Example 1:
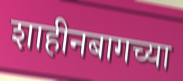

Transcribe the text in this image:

शाहीनबागच्या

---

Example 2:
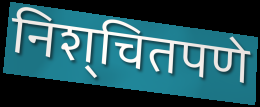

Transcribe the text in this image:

निश्चितपणे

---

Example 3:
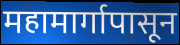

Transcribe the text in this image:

महामार्गापासून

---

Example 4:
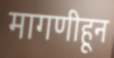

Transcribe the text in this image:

मागणीहून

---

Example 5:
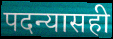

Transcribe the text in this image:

पदन्यासही